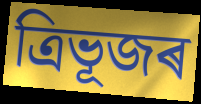
ত্ৰিভূজৰ